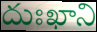
దుఃఖాని